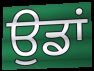
ਉਡਾਂ